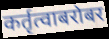
कर्तृत्वाबरोबर